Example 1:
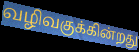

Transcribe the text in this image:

வழிவகுக்கின்றது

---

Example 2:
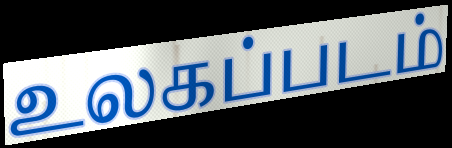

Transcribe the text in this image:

உலகப்படம்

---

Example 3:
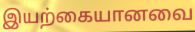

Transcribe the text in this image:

இயற்கையானவை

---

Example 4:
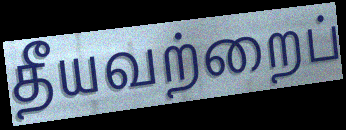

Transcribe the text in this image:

தீயவற்றைப்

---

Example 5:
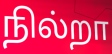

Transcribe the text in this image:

நில்றா